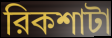
রিকশাটা